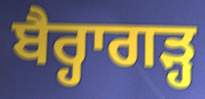
ਬੈਰ੍ਹਾਗੜ੍ਹ